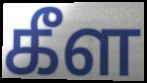
கீள